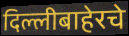
दिल्लीबाहेरचे